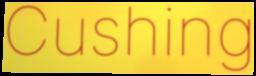
Cushing